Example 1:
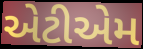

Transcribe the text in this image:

એટીએમ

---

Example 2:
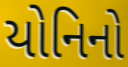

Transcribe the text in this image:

યોનિનો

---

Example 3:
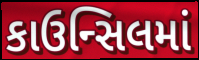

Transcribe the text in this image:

કાઉન્સિલમાં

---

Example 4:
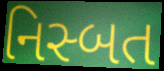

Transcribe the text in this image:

નિસ્બત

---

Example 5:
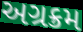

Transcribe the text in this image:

અગ્રક્રમ